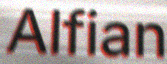
Alfian